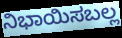
ನಿಭಾಯಿಸಬಲ್ಲ